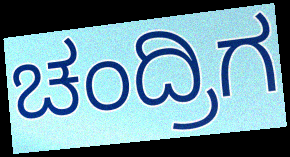
ಚಂದ್ರಿಗ